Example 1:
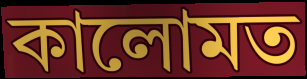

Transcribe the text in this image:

কালোমত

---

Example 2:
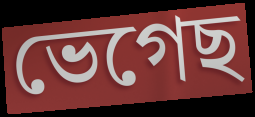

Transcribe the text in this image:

ভেগেছ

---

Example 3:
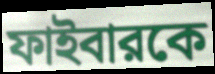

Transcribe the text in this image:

ফাইবারকে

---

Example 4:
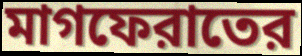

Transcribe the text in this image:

মাগফেরাতের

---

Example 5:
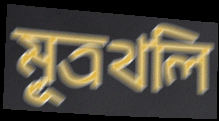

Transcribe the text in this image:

মূত্রথলি